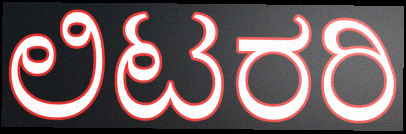
ಲಿಟರರಿ